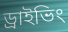
ড্ৰাইভিং